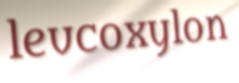
leucoxylon